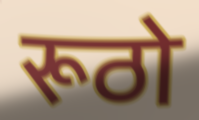
रूठो